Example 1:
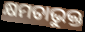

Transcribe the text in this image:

କ୍ଷମତାଭୁକ୍ତ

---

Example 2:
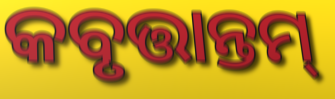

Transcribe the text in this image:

କବୃତ୍ତାନ୍ତମ୍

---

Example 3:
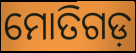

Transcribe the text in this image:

ମୋତିଗଡ଼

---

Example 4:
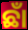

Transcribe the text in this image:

ଛାଁ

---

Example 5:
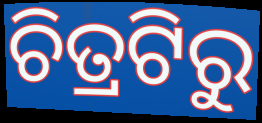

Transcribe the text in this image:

ଚିତ୍ରଟିରୁ